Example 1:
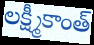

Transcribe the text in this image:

లక్ష్మీకాంత్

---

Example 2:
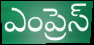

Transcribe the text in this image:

ఎంప్రెస్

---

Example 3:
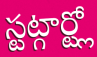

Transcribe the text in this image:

స్టట్గార్ట్లో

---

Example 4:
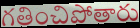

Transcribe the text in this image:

గతించిపోతారు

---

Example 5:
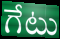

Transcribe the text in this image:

గేటు